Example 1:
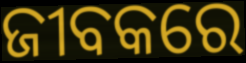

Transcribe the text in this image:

ଜୀବକରେ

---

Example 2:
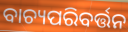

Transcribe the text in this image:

ବାଚ୍ୟପରିବର୍ତ୍ତନ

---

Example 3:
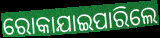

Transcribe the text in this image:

ରୋକାଯାଇପାରିଲେ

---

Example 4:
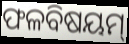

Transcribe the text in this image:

ଫଳବିଷୟମ୍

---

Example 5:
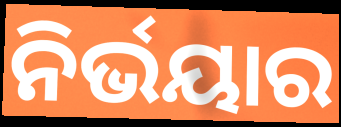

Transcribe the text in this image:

ନିର୍ଭୟାର